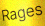
Rages